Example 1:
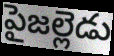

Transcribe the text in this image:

పైజల్లెడు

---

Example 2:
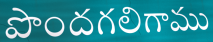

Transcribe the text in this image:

పొందగలిగాము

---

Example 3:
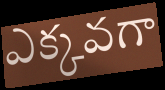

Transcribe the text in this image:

ఎక్కవగా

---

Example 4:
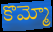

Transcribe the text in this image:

కొమ్మో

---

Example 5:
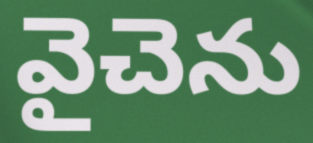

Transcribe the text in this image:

వైచెను